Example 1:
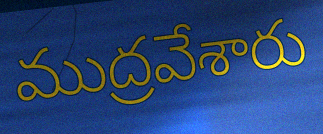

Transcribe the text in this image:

ముద్రవేశారు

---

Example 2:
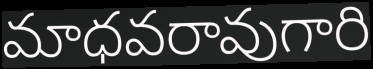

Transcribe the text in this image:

మాధవరావుగారి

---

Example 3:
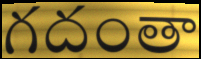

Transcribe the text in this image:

గదంతా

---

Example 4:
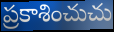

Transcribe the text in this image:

ప్రకాశించుచు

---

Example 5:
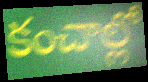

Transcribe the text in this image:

కంచాల్లో